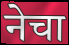
नेचा